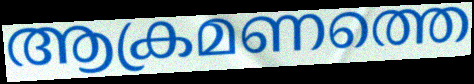
ആക്രമണത്തെ